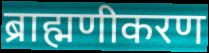
ब्राह्मणीकरण